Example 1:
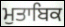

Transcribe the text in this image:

ਮੁਤਾਬਿਕ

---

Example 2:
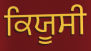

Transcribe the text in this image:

ਕਿਯੂਸੀ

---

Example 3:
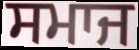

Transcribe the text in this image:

ਸਮਾਜ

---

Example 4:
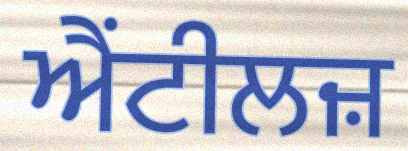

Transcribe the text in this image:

ਐਂਟੀਲਜ਼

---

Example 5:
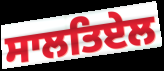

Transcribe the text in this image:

ਸਾਲਤਿਏਲ